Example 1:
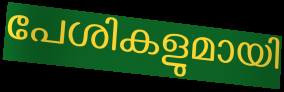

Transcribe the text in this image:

പേശികളുമായി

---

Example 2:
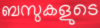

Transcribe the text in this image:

ബസുകളുടെ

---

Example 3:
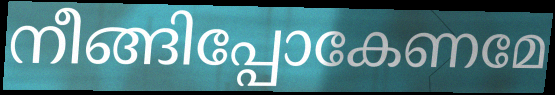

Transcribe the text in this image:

നീങ്ങിപ്പോകേണമേ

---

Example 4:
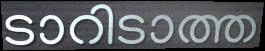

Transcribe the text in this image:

ടാറിടാത്ത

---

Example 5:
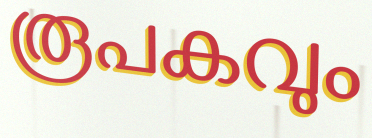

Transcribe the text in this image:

രൂപകവും